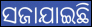
ସଜାଯାଇଛି